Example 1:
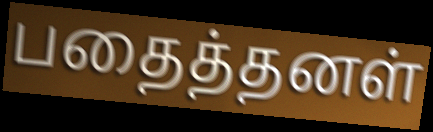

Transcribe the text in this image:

பதைத்தனள்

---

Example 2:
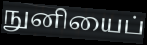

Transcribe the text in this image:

நுனியைப்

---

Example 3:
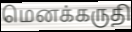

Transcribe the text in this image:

மெனக்கருதி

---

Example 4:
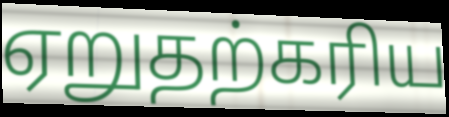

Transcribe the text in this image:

ஏறுதற்கரிய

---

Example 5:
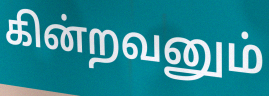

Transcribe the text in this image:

கின்றவனும்